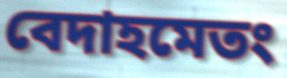
বেদাহমেতং